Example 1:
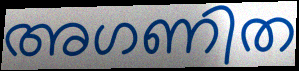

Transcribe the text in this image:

അഗണിത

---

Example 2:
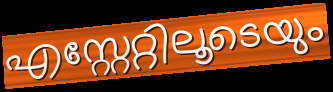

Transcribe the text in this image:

എസ്റ്റേറ്റിലൂടെയും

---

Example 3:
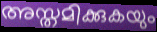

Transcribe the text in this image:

അസ്തമിക്കുകയും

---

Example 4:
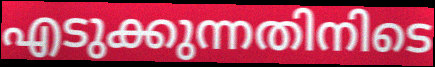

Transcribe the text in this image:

എടുക്കുന്നതിനിടെ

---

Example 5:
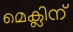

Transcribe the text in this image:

മെക്ലിന്